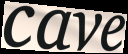
cave